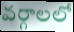
వర్గాలలో